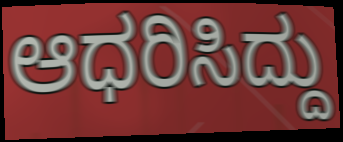
ಆಧರಿಸಿದ್ದು